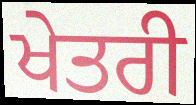
ਖੇਤਰੀ